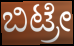
ಬಿಟ್ರೇ